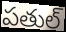
పతుల్